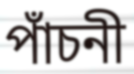
পাঁচনী